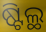
ଷ୍ଟିଲ୍ଥ